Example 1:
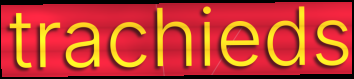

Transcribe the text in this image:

trachieds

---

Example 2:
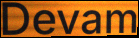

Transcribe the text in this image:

Devam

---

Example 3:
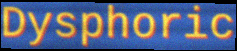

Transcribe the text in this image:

Dysphoric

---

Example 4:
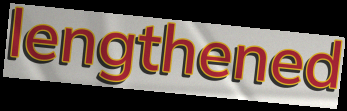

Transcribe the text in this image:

lengthened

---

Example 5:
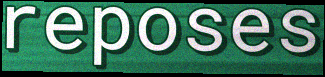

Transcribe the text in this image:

reposes